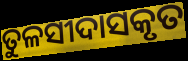
ତୁଳସୀଦାସକୃତ